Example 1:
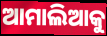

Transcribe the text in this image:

ଆମାଲିଆକୁ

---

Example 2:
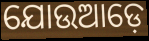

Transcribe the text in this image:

ଯୋଉଆଡ଼େ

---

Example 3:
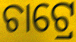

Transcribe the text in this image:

ଚାଟ୍ରେ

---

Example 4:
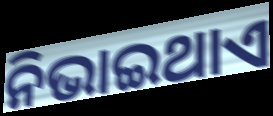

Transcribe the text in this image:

ନିଭାଇଥାଏ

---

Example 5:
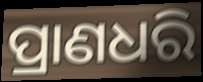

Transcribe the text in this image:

ପ୍ରାଣଧରି